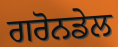
ਗਰੋਨਡੇਲ